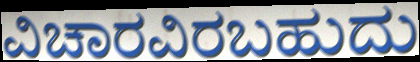
ವಿಚಾರವಿರಬಹುದು